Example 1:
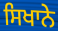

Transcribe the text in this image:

ਸਿਖਾਨੇ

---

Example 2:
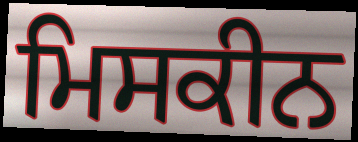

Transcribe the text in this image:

ਮਿਸਕੀਨ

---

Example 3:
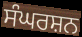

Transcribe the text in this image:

ਸੰਘਰਸ਼ਨ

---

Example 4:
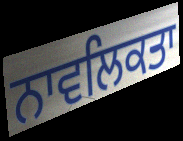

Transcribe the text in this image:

ਨਾਵਲਿਕਤਾ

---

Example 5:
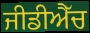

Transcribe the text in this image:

ਜੀਡੀਐੱਚ